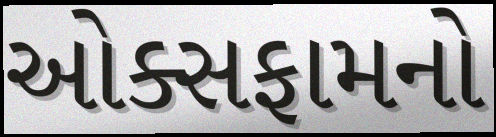
ઓક્સફામનો